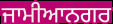
ਜਾਮੀਆਨਗਰ